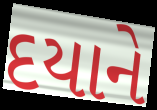
દયાને